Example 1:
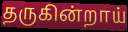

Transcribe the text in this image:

தருகின்றாய்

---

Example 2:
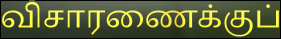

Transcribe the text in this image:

விசாரணைக்குப்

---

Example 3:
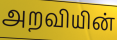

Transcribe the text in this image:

அறவியின்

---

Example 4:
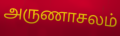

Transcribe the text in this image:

அருணாசலம்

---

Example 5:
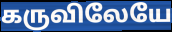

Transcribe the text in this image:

கருவிலேயே